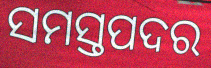
ସମସ୍ତପଦର